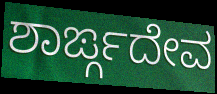
ಶಾರ್ಙ್ಗದೇವ